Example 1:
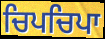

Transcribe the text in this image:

ਚਿਪਚਿਪਾ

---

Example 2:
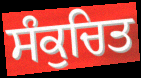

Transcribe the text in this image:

ਸੰਕੁਚਿਤ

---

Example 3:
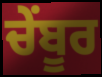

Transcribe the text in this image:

ਚੇਂਬੂਰ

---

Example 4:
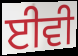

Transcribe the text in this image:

ਈਵੀ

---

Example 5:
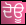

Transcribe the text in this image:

ਦੋਊ